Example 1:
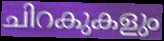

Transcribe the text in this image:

ചിറകുകളും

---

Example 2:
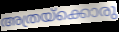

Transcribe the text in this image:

അത്രയ്ക്കൊരു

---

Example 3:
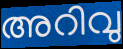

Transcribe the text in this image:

അറിവു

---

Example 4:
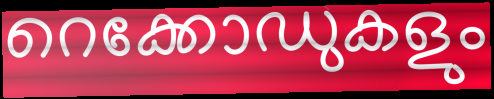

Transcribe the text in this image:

റെക്കോഡുകളും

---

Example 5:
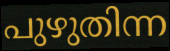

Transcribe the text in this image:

പുഴുതിന്ന